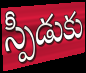
స్పీడుకు